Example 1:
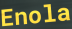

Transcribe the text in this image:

Enola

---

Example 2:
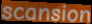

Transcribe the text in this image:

scansion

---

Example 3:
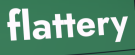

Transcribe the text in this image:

flattery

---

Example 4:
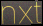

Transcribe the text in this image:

nxt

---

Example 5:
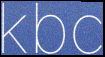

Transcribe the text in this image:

kbc